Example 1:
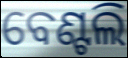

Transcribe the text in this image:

ବେଣ୍ଟଲି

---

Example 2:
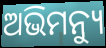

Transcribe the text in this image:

ଅଭିମନ୍ଯୁ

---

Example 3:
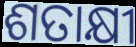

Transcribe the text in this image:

ଶତାକ୍ଷୀ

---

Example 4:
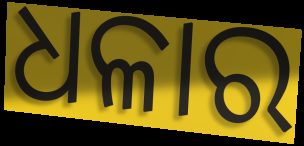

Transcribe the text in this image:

ଧଳାର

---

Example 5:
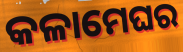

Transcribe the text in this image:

କଳାମେଘର